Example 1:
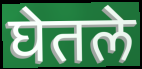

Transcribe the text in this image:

घेतले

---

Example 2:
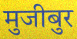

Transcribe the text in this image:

मुजीबुर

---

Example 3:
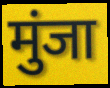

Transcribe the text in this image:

मुंजा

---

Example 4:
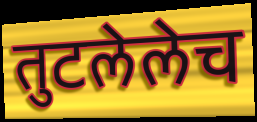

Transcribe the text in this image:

तुटलेलेच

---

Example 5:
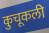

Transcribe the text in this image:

कुचूकली